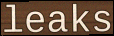
leaks